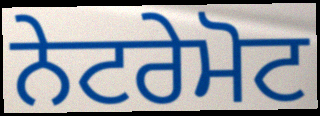
ਨੇਟਰੇਮੋਟ